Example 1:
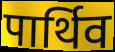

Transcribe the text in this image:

पार्थिव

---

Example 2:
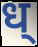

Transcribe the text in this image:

ध्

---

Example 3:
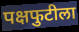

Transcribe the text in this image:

पक्षफुटीला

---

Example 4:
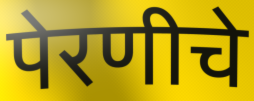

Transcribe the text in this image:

पेरणीचे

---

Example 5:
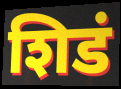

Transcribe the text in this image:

शिडं